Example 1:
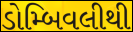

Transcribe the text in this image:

ડોમ્બિવલીથી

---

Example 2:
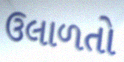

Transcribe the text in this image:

ઉલાળતો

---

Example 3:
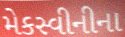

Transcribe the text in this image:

મેકસ્વીનીના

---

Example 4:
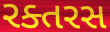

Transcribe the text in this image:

રક્તરસ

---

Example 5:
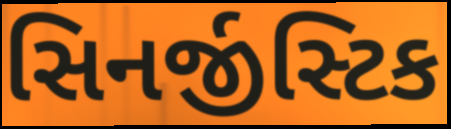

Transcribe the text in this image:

સિનર્જીસ્ટિક